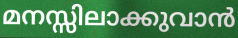
മനസ്സിലാക്കുവാൻ